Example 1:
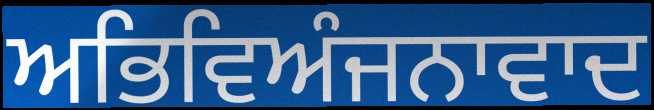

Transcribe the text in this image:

ਅਭਿਵਿਅੰਜਨਾਵਾਦ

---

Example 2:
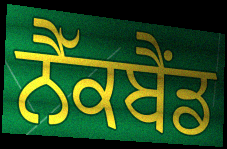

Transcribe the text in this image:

ਨੈੱਕਬੈਂਡ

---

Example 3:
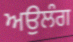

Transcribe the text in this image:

ਅਉਲੰਗ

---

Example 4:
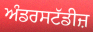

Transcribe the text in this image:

ਅੰਡਰਸਟੱਡੀਜ਼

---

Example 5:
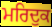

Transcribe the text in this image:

ਮਰਿਦੁਕ